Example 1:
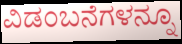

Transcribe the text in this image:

ವಿಡಂಬನೆಗಳನ್ನೂ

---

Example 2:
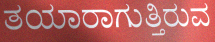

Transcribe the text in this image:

ತಯಾರಾಗುತ್ತಿರುವ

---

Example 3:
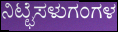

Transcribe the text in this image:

ನಿಟ್ಟೆಸಳುಗಂಗಳ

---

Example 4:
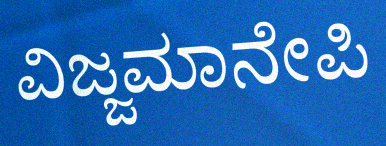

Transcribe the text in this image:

ವಿಜ್ಜಮಾನೇಪಿ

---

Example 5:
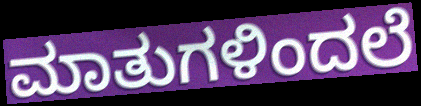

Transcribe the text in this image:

ಮಾತುಗಳಿಂದಲೆ